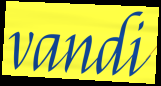
vandi